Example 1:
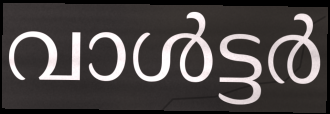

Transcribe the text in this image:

വാൾട്ടർ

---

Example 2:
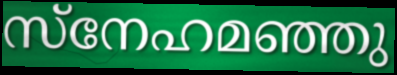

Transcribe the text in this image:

സ്നേഹമഞ്ഞു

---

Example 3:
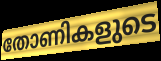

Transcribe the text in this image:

തോണികളുടെ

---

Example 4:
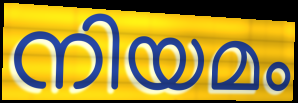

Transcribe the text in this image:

നിയമം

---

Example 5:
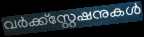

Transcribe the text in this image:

വർക്ക്സ്റ്റേഷനുകൾ